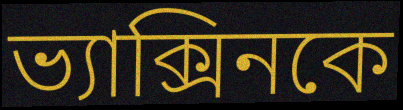
ভ্যাক্সিনকে